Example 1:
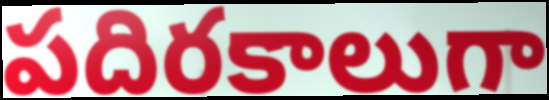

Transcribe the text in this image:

పదిరకాలుగా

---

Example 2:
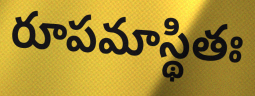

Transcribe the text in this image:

రూపమాస్థితః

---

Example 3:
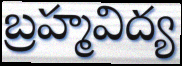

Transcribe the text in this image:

బ్రహ్మవిద్య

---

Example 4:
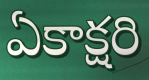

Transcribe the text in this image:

ఏకాక్షరి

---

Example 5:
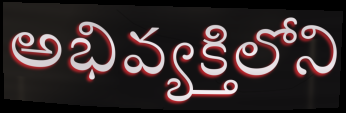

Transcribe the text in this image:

అభివ్యక్తిలోని